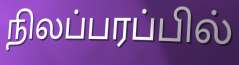
நிலப்பரப்பில்